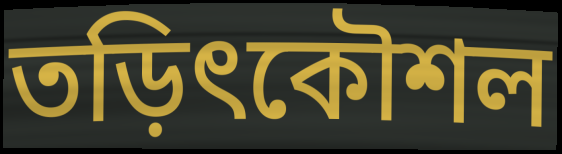
তড়িৎকৌশল